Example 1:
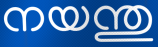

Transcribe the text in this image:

നയന്തു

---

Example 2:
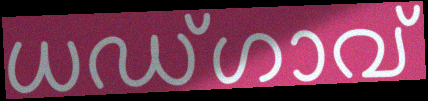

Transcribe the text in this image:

ധഡ്ഗാവ്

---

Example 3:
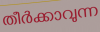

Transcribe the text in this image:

തീർക്കാവുന്ന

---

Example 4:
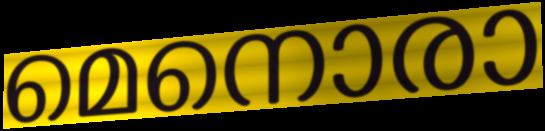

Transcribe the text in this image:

മെനൊരാ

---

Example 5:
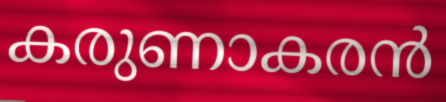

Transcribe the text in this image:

കരുണാകരൻ